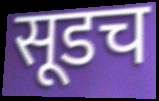
सूडच